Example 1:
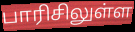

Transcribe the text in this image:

பாரிசிலுள்ள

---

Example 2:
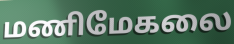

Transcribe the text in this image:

மணிமேகலை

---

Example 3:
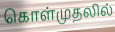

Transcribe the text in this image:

கொள்முதலில்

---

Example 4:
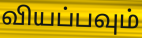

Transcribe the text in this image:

வியப்பவும்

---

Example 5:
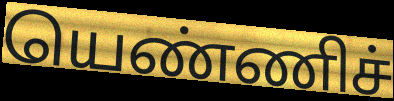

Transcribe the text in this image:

யெண்ணிச்